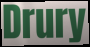
Drury